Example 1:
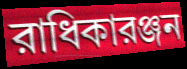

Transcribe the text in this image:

রাধিকারঞ্জন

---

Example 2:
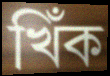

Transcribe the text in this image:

খিঁক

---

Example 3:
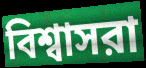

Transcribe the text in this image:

বিশ্বাসরা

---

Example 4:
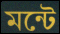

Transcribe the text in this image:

মন্টে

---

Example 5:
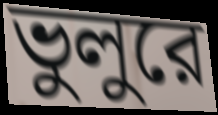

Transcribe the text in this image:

ভুলুরে